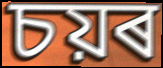
চয়ৰ